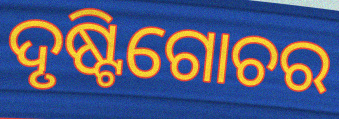
ଦୃଷ୍ଟିଗୋଚର